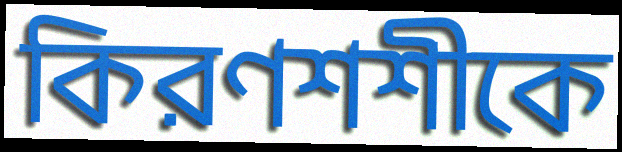
কিরণশশীকে